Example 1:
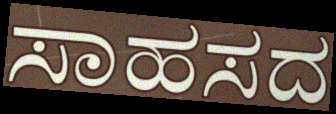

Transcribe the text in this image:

ಸಾಹಸದ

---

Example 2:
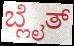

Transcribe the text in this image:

ಬ್ಲೈತ್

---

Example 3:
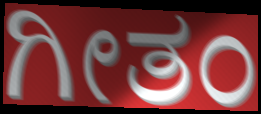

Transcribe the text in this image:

ಗೀತಂ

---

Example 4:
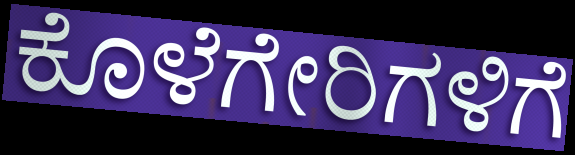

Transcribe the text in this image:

ಕೊಳೆಗೇರಿಗಳಿಗೆ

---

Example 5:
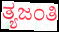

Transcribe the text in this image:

ತ್ಯಜಂತಿ